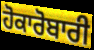
ਹੋਕਾਰੋਬਾਰੀ